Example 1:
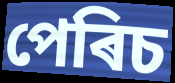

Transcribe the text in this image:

পেৰিচ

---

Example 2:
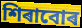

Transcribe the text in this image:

শিৰাবোৰ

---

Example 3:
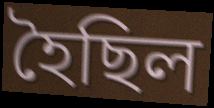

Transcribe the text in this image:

হৈছিল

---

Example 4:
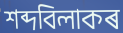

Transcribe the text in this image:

শব্দবিলাকৰ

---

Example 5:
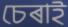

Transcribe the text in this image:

চেৰাই